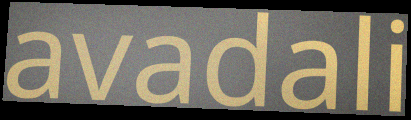
avadali